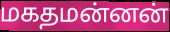
மகதமன்னன்